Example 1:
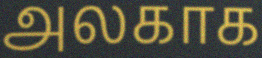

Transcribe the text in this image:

அலகாக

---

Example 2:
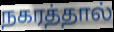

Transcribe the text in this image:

நகரத்தால்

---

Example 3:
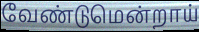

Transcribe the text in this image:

வேண்டுமென்றாய்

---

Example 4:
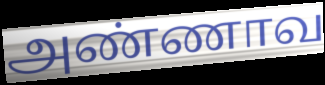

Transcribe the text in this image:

அண்ணாவ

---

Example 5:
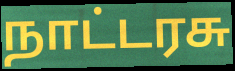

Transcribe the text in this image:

நாட்டரசு